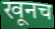
खूनच